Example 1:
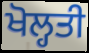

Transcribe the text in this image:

ਖੋਲ੍ਹਤੀ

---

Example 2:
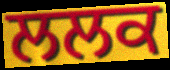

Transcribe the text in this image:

ਲਲਕ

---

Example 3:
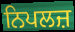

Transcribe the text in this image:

ਨਿਪਲਜ਼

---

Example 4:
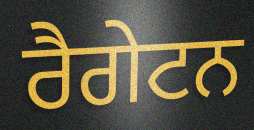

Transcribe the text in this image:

ਰੈਗੇਟਨ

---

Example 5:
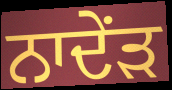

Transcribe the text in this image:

ਨਾਦੇਂੜ